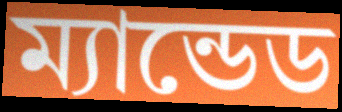
ম্যান্ডেড